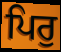
ਪਿਰੁ